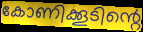
കോണിക്കൂടിന്റെ